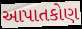
આપાતકોણ